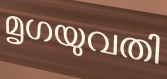
മൃഗയുവതി